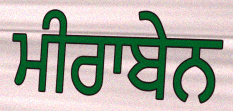
ਮੀਰਾਬੇਨ